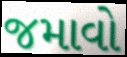
જમાવો